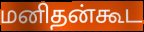
மனிதன்கூட